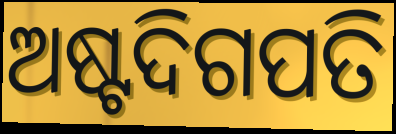
ଅଷ୍ଟଦିଗପତି